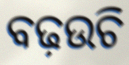
ବଢ଼ଉଚି